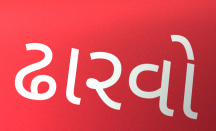
ઢારવો